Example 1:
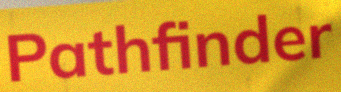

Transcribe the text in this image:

Pathfinder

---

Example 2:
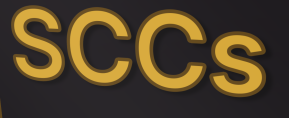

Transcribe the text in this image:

SCCs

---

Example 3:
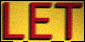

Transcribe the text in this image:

LET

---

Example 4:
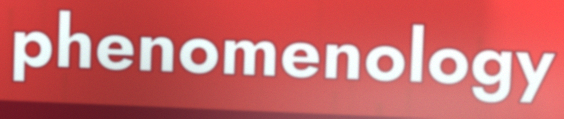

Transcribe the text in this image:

phenomenology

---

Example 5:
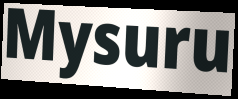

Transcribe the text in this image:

Mysuru